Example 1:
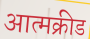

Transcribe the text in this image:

आत्मक्रीड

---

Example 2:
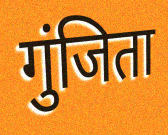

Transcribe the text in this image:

गुंजिता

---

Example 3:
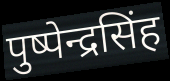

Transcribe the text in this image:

पुष्पेन्द्रसिंह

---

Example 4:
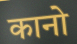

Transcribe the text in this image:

कानो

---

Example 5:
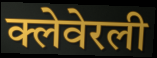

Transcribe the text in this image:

क्लेवेरली